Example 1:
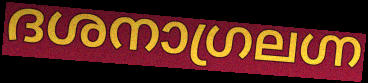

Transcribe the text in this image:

ദശനാഗ്രലഗ്ന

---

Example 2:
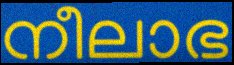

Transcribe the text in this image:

നീലാഭ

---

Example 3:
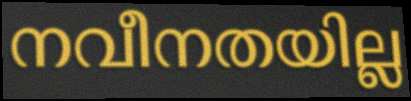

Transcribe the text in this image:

നവീനതയില്ല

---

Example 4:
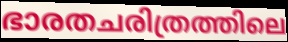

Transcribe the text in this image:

ഭാരതചരിത്രത്തിലെ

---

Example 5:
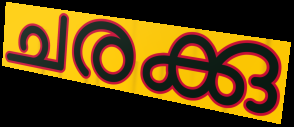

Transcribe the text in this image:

ചരക്കു